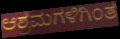
ಆಶ್ರಮಗಳಿಗಿಂತ